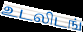
உடலிடங்